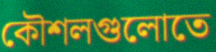
কৌশলগুলোতে